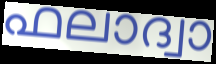
ഫലാദ്വാ